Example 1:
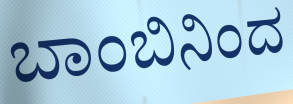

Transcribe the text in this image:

ಬಾಂಬಿನಿಂದ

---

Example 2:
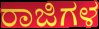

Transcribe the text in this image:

ರಾಜಿಗಳ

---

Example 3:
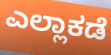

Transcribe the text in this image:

ಎಲ್ಲಾಕಡೆ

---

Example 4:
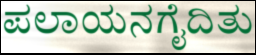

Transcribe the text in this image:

ಪಲಾಯನಗೈದಿತು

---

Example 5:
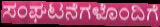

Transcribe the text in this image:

ಸಂಘಟನೆಗಳೊಂದಿಗೆ